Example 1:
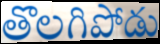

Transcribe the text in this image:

తొలగిపోడు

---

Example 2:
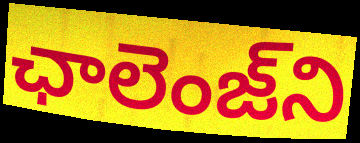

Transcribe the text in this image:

ఛాలెంజ్‌ని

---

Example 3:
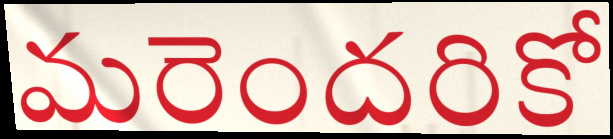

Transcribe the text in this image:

మరెందరికో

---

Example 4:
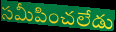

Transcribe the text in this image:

సమీపించలేడు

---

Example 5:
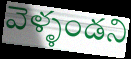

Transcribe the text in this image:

వెళ్ళండని